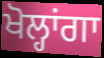
ਖੋਲ੍ਹਾਂਗਾ